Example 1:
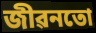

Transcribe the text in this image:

জীৱনতো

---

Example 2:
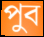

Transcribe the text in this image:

পুব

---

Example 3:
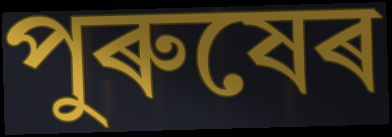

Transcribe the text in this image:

পুৰুষেৰ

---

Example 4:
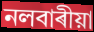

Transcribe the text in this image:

নলবাৰীয়া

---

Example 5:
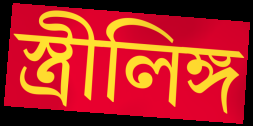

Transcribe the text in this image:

স্ত্ৰীলিঙ্গ